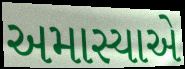
અમાસ્યાએ